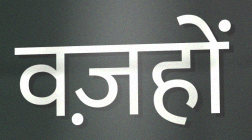
वज़हों